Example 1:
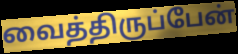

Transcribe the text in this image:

வைத்திருப்பேன்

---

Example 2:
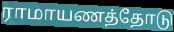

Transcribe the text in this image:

ராமாயணத்தோடு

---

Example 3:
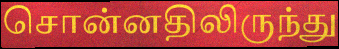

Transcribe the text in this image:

சொன்னதிலிருந்து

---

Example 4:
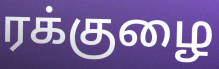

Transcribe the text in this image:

ரக்குழை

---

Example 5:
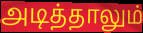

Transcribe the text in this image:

அடித்தாலும்